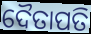
ଦୈତାପତି